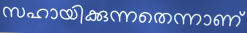
സഹായിക്കുന്നതെന്നാണ്